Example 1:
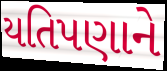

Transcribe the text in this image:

યતિપણાને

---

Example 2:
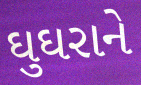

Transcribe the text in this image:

ઘુઘરાને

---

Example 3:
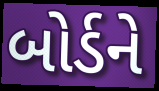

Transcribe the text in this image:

બોર્ડને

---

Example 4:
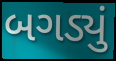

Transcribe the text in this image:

બગડ્યું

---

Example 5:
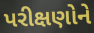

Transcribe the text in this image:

પરીક્ષણોને